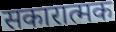
सकारात्मक